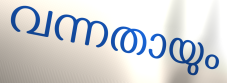
വന്നതായും